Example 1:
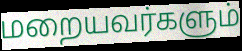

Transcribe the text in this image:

மறையவர்களும்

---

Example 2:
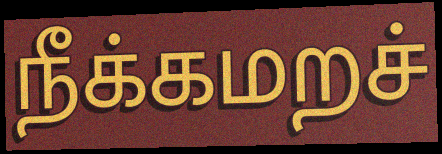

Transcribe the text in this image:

நீக்கமறச்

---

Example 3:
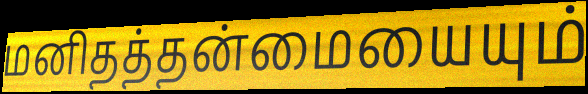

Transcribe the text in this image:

மனிதத்தன்மையையும்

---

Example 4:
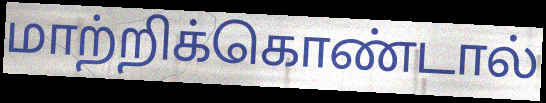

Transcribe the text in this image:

மாற்றிக்கொண்டால்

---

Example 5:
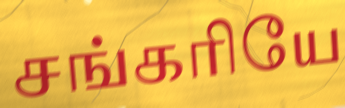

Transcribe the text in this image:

சங்கரியே